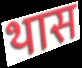
थास